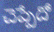
చెప్పేదో